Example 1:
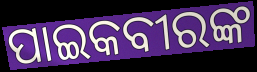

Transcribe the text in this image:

ପାଇକବୀରଙ୍କ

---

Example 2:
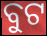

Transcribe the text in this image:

ବୁଟ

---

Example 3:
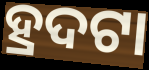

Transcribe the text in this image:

ହ୍ରଦଟା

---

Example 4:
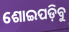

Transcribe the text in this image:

ଶୋଇପଡ଼ିବୁ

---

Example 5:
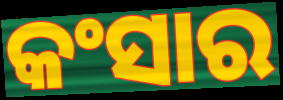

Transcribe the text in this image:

କଂସାର